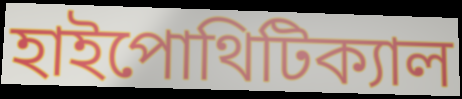
হাইপোথিটিক্যাল